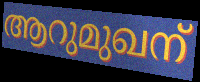
ആറുമുഖന്